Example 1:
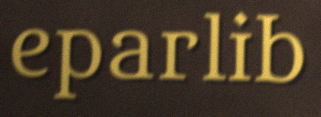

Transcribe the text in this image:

eparlib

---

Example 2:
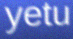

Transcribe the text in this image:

yetu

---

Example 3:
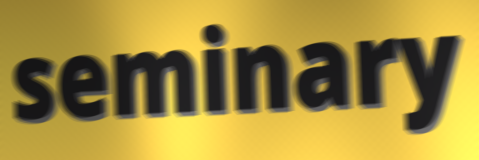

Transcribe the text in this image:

seminary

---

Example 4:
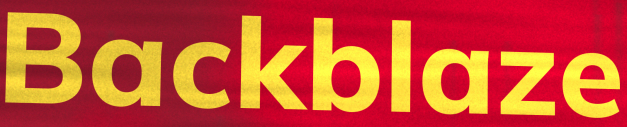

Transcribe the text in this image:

Backblaze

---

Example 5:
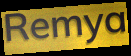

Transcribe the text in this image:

Remya